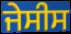
ਜੇਸੀਸ